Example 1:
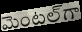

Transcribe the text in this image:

మెంటల్‌గా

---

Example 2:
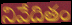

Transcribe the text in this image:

నివేదితం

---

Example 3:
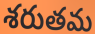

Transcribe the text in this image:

శరుతమ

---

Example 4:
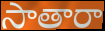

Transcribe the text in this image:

సాతారా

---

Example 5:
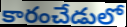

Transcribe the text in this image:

కారంచేడులో